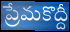
ప్రేమకొద్దీ